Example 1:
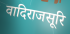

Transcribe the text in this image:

वादिराजसूरि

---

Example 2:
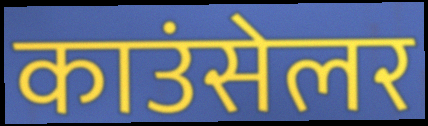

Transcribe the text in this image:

काउंसेलर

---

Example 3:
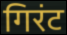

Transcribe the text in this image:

गिरंट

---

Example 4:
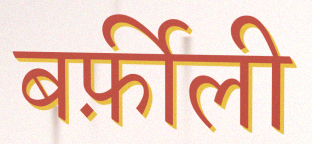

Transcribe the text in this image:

बर्फ़ीली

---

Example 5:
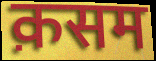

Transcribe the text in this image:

क़सम